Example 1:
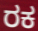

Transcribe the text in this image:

ರಕ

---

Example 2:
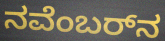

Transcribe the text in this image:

ನವೆಂಬರ್‌ನ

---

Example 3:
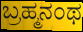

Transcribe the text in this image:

ಬ್ರಹ್ಮನಂಥ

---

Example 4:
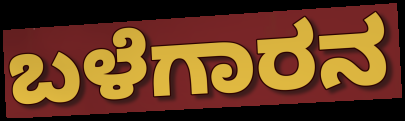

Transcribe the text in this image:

ಬಳೆಗಾರನ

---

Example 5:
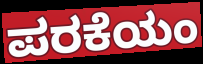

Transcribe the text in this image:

ಪರಕೆಯಂ